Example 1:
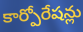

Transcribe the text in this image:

కార్పోరేషన్లు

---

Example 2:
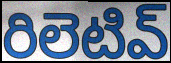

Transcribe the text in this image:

రిలెటివ్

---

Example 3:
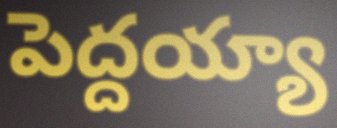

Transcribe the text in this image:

పెద్దయ్యా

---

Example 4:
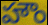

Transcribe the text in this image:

హౌం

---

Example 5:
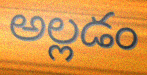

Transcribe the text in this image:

అల్లడం